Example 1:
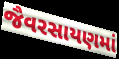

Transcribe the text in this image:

જૈવરસાયણમાં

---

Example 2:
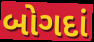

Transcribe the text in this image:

બોગદાં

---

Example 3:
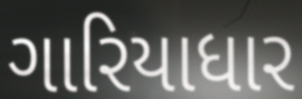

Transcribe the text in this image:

ગારિયાધાર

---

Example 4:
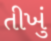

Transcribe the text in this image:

તીખું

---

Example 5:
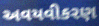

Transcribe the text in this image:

અવયવીકરણ